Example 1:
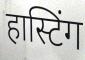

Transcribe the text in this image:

हास्टिंग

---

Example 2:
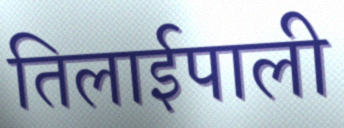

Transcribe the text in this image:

तिलाईपाली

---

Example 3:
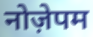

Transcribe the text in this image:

नोज़ेपम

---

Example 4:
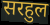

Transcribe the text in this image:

सरहुल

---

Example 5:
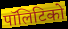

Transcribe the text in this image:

पॉलिटिको